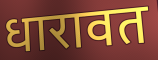
धारावत